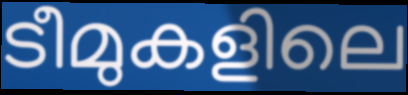
ടീമുകളിലെ